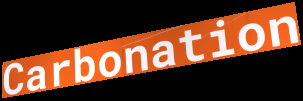
Carbonation